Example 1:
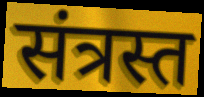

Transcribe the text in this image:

संत्रस्त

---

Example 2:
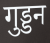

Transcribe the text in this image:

गुड्डन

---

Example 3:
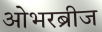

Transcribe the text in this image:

ओभरब्रीज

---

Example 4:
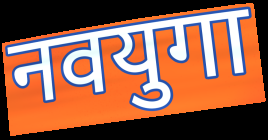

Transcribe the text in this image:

नवयुगा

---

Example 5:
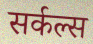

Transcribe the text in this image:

सर्कल्स